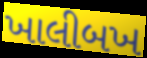
ખાલીબખ